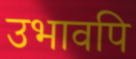
उभावपि